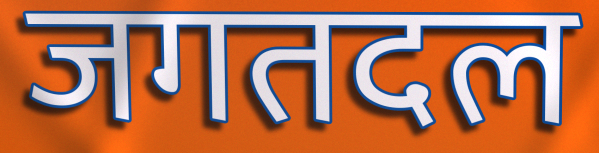
जगतदल